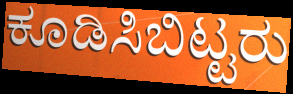
ಕೂಡಿಸಿಬಿಟ್ಟರು